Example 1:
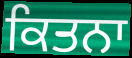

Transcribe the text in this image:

ਕਿਤਨਾ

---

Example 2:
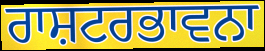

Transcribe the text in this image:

ਰਾਸ਼ਟਰਭਾਵਨਾ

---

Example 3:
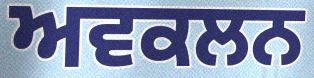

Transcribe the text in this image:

ਅਵਕਲਨ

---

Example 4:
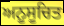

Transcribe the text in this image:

ਅਨੂਸੂਚਿਤ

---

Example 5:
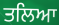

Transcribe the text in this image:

ਤਲਿਆ